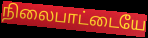
நிலைபாட்டையே